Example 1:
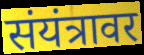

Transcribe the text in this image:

संयंत्रावर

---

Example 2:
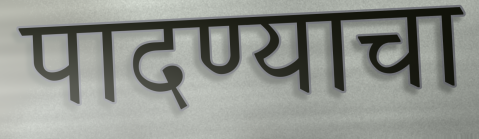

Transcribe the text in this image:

पादण्याचा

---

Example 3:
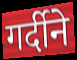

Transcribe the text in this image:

गर्दीने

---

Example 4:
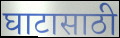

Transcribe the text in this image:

घाटासाठी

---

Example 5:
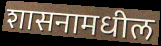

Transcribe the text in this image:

शासनामधील